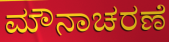
ಮೌನಾಚರಣೆ